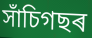
সাঁচিগছৰ